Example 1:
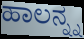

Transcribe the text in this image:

ಹಾಲನ್ನ್ನ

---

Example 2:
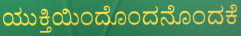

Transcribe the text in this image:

ಯುಕ್ತಿಯಿಂದೊಂದನೊಂದಕೆ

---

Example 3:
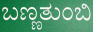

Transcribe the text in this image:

ಬಣ್ಣತುಂಬಿ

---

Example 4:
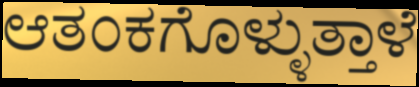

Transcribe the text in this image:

ಆತಂಕಗೊಳ್ಳುತ್ತಾಳೆ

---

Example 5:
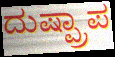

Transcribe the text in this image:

ದುಷ್ಪ್ರಾಪ